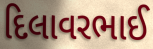
દિલાવરભાઈ